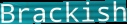
Brackish